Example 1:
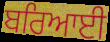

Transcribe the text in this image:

ਬਰਿਆਈ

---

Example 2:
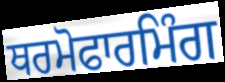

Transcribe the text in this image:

ਥਰਮੋਫਾਰਮਿੰਗ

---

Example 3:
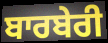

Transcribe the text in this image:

ਬਾਰਬੇਰੀ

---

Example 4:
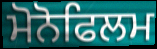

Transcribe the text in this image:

ਮੋਨੋਫਿਲਮ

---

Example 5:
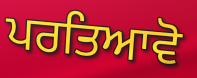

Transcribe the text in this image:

ਪਰਤਿਆਵੋ